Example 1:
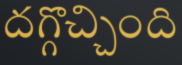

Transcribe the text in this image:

దగ్గొచ్చింది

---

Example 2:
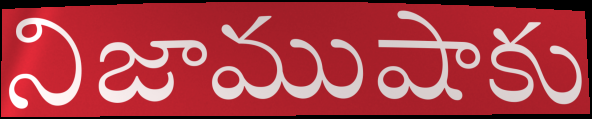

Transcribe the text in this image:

నిజాముషాకు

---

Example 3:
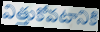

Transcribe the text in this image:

విత్తుకోవటానికి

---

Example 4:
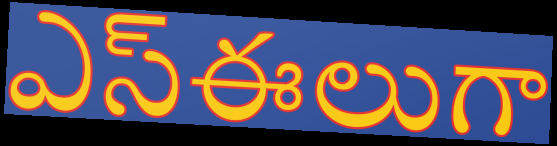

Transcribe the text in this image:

ఎస్ఈలుగా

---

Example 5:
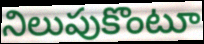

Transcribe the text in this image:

నిలుపుకొంటూ